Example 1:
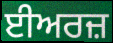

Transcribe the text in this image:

ਈਅਰਜ਼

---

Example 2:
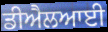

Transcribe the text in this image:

ਡੀਐਲਆਈ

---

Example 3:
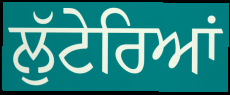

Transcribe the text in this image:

ਲੁੱਟੇਰਿਆਂ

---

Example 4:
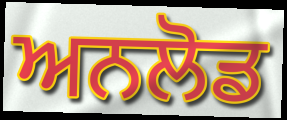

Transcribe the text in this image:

ਅਨਲੋਡ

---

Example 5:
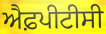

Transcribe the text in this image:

ਐਫ਼ਪੀਟੀਸੀ